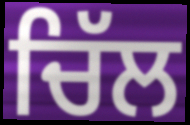
ਚਿੱਲ